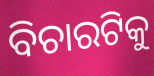
ବିଚାରଟିକୁ